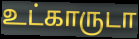
உட்காருடா